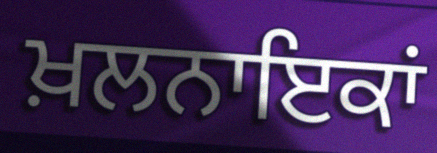
ਖ਼ਲਨਾਇਕਾਂ